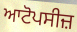
ਆਟੋਪਸੀਜ਼